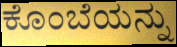
ಕೊಂಬೆಯನ್ನು